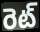
రెట్